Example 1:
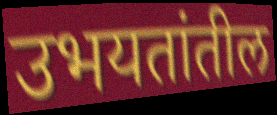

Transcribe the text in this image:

उभयतांतील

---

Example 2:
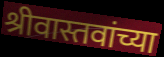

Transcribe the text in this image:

श्रीवास्तवांच्या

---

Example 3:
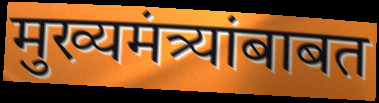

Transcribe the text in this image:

मुख्यमंत्र्यांबाबत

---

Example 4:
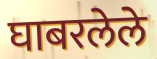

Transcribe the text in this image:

घाबरलेले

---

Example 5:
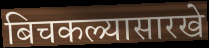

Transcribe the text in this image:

बिचकल्यासारखे